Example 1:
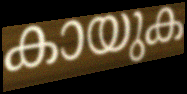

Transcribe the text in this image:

കായുക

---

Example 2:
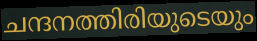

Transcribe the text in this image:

ചന്ദനത്തിരിയുടെയും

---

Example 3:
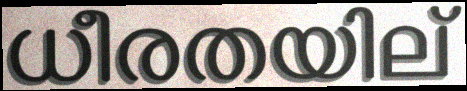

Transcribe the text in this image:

ധീരതയില്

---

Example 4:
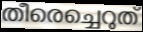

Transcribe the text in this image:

തീരെച്ചെറുത്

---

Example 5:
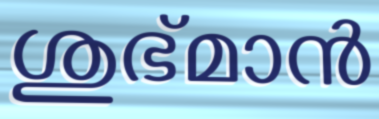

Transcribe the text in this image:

ശുഭ്മാൻ